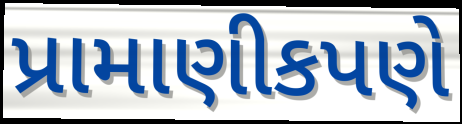
પ્રામાણીકપણે